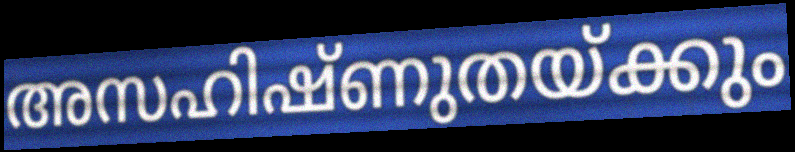
അസഹിഷ്ണുതയ്ക്കും